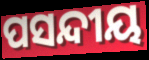
ପସନ୍ଦୀୟ